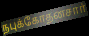
நபுக்கோதனசார்